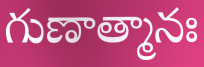
గుణాత్మానః